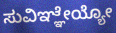
ಸುವಿಞ್ಞೇಯ್ಯೋ